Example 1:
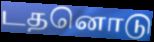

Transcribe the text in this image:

டதனொடு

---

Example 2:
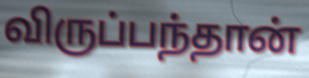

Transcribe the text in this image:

விருப்பந்தான்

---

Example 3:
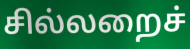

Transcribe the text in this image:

சில்லறைச்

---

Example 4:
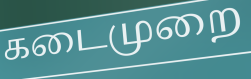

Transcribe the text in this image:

கடைமுறை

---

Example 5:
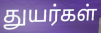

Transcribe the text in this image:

துயர்கள்